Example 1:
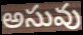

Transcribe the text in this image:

అసువు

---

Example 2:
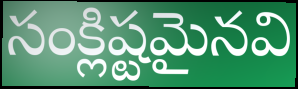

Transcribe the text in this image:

సంక్లిష్టమైనవి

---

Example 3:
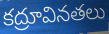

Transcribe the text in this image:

కద్రూవినతలు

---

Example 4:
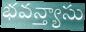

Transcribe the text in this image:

భవన్త్యాసు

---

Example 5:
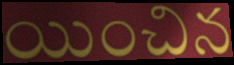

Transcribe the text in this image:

యించిన